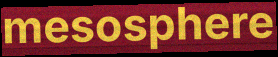
mesosphere